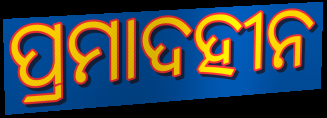
ପ୍ରମାଦହୀନ